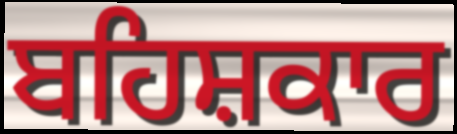
ਬਹਿਸ਼ਕਾਰ